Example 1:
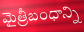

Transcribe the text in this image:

మైత్రీబంధాన్ని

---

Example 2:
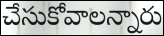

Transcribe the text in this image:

చేసుకోవాలన్నారు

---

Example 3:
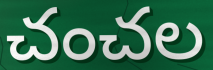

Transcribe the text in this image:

చంచల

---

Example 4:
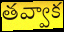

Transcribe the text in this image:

తవ్వాక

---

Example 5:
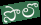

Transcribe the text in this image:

సొలొ